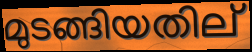
മുടങ്ങിയതില്